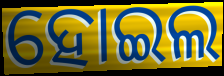
ହୋଇଲ